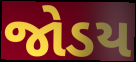
જોડય